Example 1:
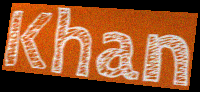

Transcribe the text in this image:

Khan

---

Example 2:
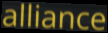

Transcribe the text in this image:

alliance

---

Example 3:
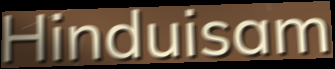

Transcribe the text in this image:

Hinduisam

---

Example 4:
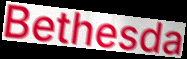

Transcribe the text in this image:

Bethesda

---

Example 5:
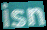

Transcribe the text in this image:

isn